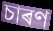
চাৰণ